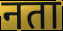
नता